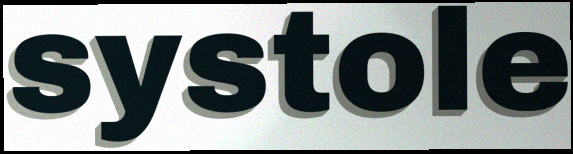
systole